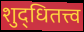
शुद्धितत्त्व